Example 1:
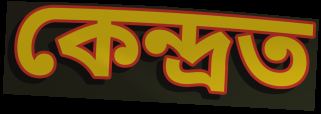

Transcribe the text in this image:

কেন্দ্ৰত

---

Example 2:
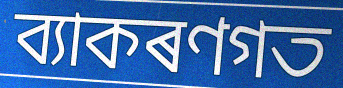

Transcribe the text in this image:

ব্যাকৰণগত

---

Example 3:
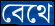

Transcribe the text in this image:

বেথে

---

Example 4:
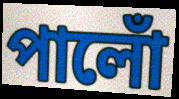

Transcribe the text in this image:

পালোঁ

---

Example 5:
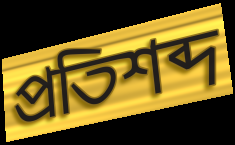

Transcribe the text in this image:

প্ৰতিশব্দ